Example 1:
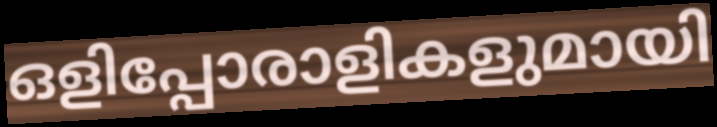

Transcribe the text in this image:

ഒളിപ്പോരാളികളുമായി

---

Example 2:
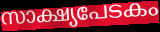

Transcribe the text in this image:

സാക്ഷ്യപേടകം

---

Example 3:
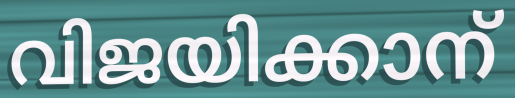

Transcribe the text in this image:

വിജയിക്കാന്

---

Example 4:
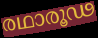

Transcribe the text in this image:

രഥാരൂഢ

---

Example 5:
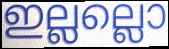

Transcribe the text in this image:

ഇല്ലല്ലൊ